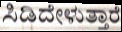
ಸಿಡಿದೇಳುತ್ತಾರೆ